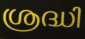
ശ്രദ്ധി